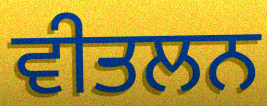
ਵੀਤਲਨ